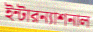
ইন্টারন্যাশনাল